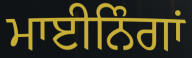
ਮਾਈਨਿੰਗਾਂ